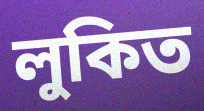
লুকিত